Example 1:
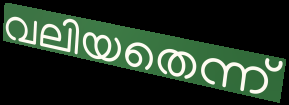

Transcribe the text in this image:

വലിയതെന്ന്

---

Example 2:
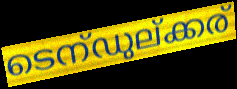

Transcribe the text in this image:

ടെന്ഡുല്ക്കര്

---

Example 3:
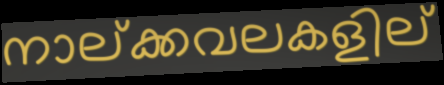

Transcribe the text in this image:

നാല്ക്കവലകളില്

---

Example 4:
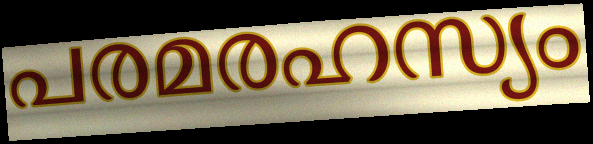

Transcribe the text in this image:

പരമരഹസ്യം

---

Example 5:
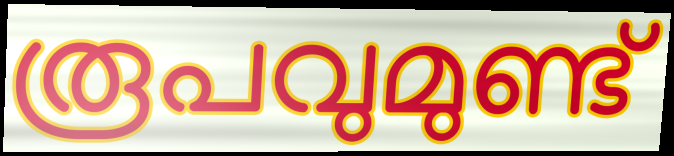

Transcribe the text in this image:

രൂപവുമുണ്ട്